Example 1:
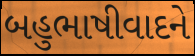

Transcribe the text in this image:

બહુભાષીવાદને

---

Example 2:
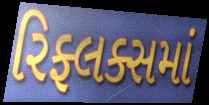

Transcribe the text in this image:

રિફ્લક્સમાં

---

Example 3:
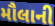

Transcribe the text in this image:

મૌલાની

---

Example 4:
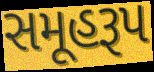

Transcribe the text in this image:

સમૂહરૂપ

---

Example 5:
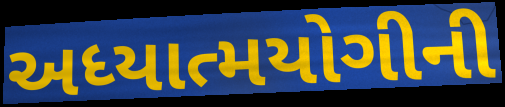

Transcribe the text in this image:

અધ્યાત્મયોગીની